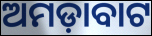
ଅମଡ଼ାବାଟ